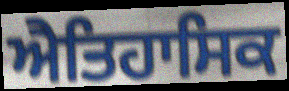
ਐਤਿਹਾਸਿਕ